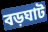
বড়ঘাট